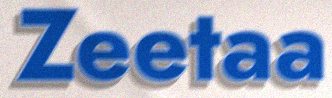
Zeetaa